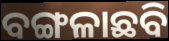
ବଙ୍ଗଳାଛବି